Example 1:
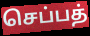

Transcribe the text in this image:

செப்பத்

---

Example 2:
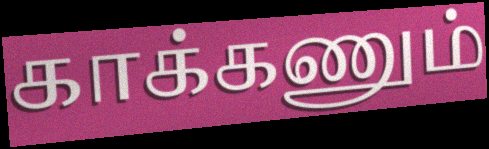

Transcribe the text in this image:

காக்கணும்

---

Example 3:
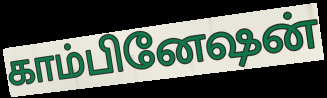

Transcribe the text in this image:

காம்பினேஷன்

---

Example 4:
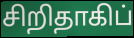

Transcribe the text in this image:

சிறிதாகிப்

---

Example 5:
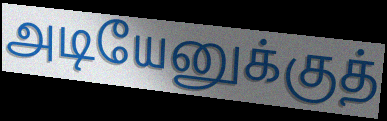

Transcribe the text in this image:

அடியேனுக்குத்